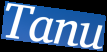
Tanu